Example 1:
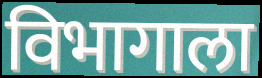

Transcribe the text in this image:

विभागाला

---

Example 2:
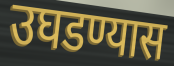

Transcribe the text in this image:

उघडण्यास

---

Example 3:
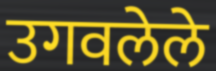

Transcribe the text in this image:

उगवलेले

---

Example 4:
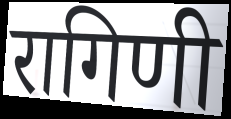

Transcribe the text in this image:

रागिणी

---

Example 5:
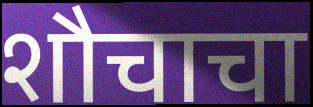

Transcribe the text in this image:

शौचाचा